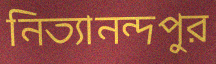
নিত্যানন্দপুর